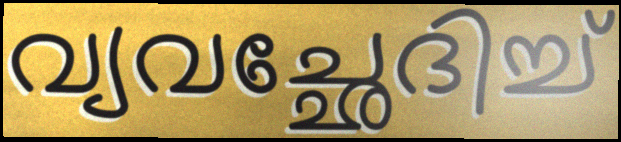
വ്യവച്ഛേദിച്ച്